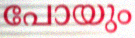
പോയും